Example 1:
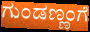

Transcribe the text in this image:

ಗುಂಡಣ್ಣಂಗೆ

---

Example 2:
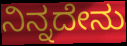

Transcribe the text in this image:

ನಿನ್ನದೇನು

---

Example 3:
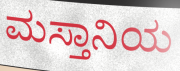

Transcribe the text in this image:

ಮಸ್ತಾನಿಯ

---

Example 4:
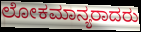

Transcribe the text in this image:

ಲೋಕಮಾನ್ಯರಾದರು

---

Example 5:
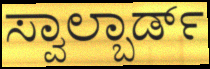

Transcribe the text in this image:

ಸ್ವಾಲ್ಬಾರ್ಡ್